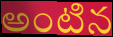
అంటిన